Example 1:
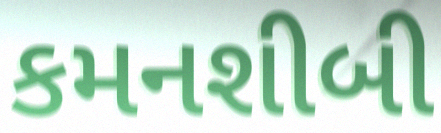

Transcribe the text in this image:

કમનશીબી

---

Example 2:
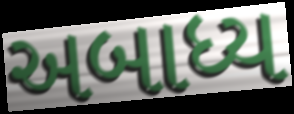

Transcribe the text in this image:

અબાધ્ય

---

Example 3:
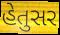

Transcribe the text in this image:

હેતુસર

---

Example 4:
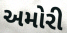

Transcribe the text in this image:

અમોરી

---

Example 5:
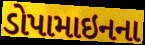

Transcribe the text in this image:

ડોપામાઇનના